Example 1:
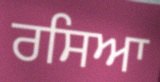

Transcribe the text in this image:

ਰਸਿਆ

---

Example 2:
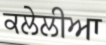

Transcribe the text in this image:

ਕਲੇਲੀਆ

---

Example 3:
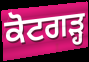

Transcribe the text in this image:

ਕੋਟਗੜ੍ਹ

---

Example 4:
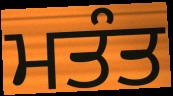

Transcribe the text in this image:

ਮਤੰਤ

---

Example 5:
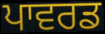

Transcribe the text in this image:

ਪਾਵਰਡ